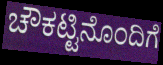
ಚೌಕಟ್ಟಿನೊಂದಿಗೆ